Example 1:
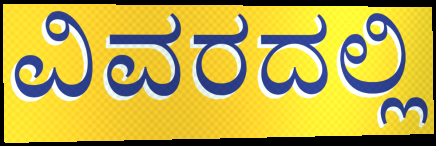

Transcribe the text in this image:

ವಿವರದಲ್ಲಿ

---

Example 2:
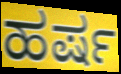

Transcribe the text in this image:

ಹರ್ಷ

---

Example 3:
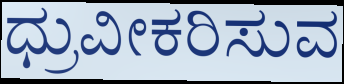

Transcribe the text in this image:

ಧ್ರುವೀಕರಿಸುವ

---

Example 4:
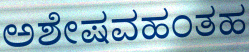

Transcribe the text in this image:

ಅಶೇಷವಹಂತಹ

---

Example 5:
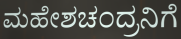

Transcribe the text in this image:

ಮಹೇಶಚಂದ್ರನಿಗೆ